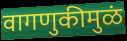
वागणुकीमुळं